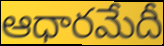
ఆధారమేదీ